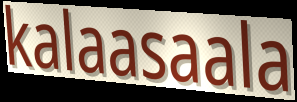
kalaasaala